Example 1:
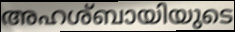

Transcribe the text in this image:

അഹശ്ബായിയുടെ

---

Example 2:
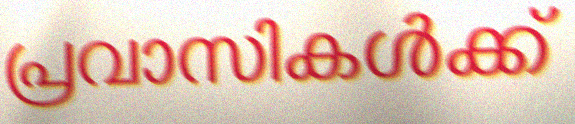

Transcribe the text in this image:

പ്രവാസികൾക്ക്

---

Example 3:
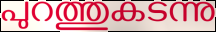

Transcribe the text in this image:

പുറത്തുകടന്നു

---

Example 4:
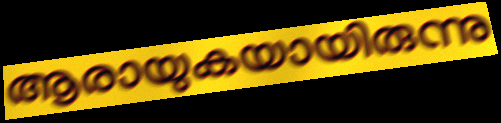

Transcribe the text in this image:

ആരായുകയായിരുന്നു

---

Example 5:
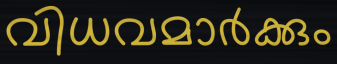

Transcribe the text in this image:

വിധവമാർക്കും